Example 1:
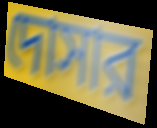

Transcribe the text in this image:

দোসার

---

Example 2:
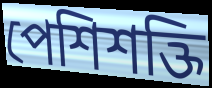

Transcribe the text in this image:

পেশিশক্তি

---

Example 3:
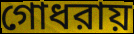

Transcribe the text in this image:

গোধরায়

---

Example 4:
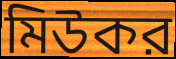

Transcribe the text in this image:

মিউকর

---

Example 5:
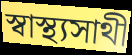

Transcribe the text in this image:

স্বাস্থ্যসাথী